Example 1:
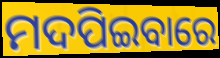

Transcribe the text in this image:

ମଦପିଇବାରେ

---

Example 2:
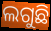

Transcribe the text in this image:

ଲଗୁଛି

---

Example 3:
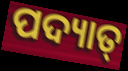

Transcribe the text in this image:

ପଦ୍ୟାତ୍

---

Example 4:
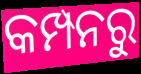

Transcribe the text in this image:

କମ୍ପନରୁ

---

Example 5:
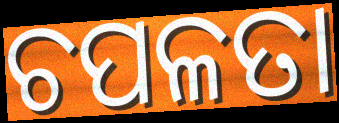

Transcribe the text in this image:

ଚପଳତା